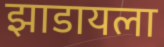
झाडायला